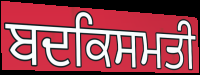
ਬਦਕਿਸਮਤੀ